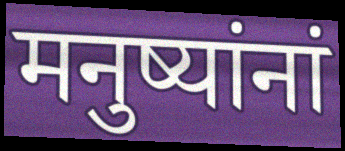
मनुष्यांनां